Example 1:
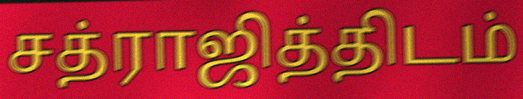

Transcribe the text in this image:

சத்ராஜித்திடம்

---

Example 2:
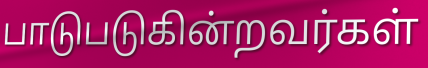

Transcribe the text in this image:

பாடுபடுகின்றவர்கள்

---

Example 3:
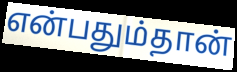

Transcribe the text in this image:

என்பதும்தான்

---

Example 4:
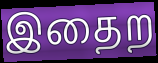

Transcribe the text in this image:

இதைற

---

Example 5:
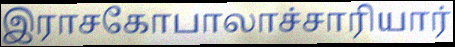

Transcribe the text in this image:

இராசகோபாலாச்சாரியார்